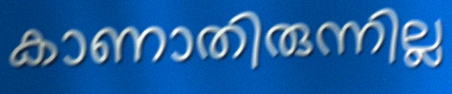
കാണാതിരുന്നില്ല